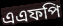
এএফপি